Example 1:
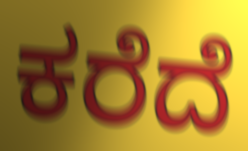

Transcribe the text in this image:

ಕರೆದೆ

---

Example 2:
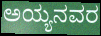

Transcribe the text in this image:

ಅಯ್ಯನವರ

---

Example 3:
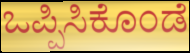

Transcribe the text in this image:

ಒಪ್ಪಿಸಿಕೊಂಡೆ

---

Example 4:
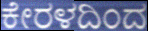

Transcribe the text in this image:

ಕೇರಳದಿಂದ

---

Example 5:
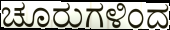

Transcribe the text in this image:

ಚೂರುಗಳಿಂದ